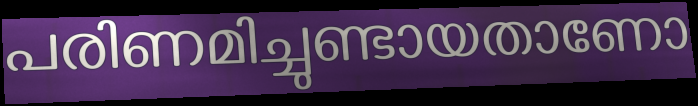
പരിണമിച്ചുണ്ടായതാണോ